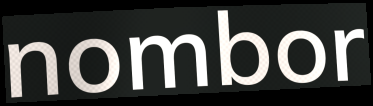
nombor